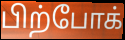
பிற்போக்